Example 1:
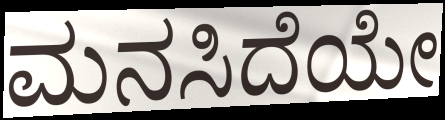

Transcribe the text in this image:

ಮನಸಿದೆಯೇ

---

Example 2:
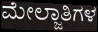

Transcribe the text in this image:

ಮೇಲ್ಜಾತಿಗಳ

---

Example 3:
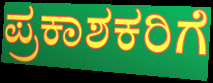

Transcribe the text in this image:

ಪ್ರಕಾಶಕರಿಗೆ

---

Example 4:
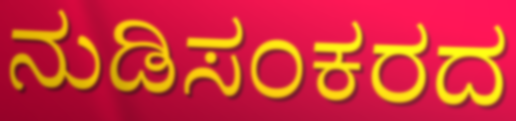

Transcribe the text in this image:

ನುಡಿಸಂಕರದ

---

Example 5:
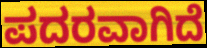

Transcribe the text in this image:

ಪದರವಾಗಿದೆ